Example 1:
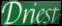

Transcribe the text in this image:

Driest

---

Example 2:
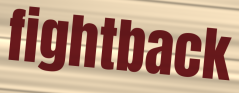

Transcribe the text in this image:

fightback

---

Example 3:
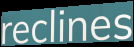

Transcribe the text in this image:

reclines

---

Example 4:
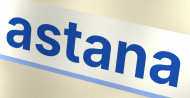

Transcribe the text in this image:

astana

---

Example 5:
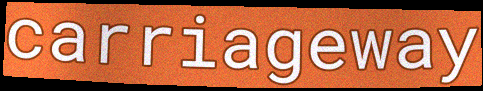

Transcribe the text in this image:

carriageway